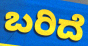
ಬರಿದೆ